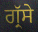
ਗ੍ਰੱਸੇ